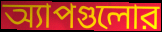
অ্যাপগুলোর